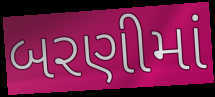
બરણીમાં